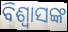
ବିଶ୍ୱାସଙ୍କ